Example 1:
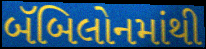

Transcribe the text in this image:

બૅબિલોનમાંથી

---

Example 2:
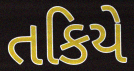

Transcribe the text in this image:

તકિયે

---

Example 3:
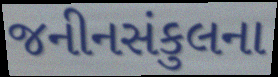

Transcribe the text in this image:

જનીનસંકુલના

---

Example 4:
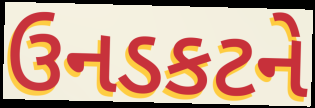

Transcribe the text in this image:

ઉનડકટને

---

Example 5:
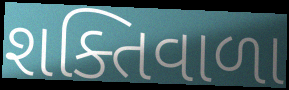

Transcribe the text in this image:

શક્તિવાળા